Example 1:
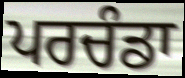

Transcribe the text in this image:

ਪਰਚੰਡਾ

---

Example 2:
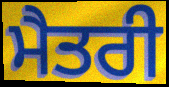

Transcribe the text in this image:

ਮੈਤਰੀ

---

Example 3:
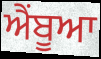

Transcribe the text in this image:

ਐਂਬੂਆ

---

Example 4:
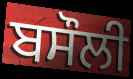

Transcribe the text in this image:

ਬਸੌਲੀ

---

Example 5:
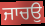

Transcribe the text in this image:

ਜਾਚਉ